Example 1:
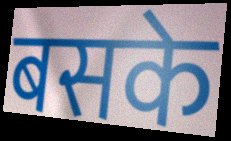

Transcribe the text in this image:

बसके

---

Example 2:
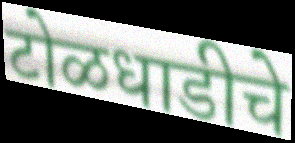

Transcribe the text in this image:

टोळधाडीचे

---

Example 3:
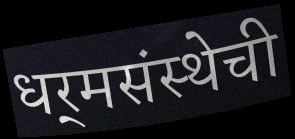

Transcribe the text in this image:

धर्मसंस्थेची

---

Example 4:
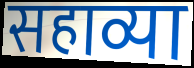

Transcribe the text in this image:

सहाव्या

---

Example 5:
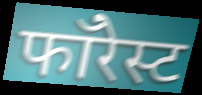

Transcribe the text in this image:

फॉरेस्ट